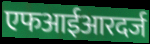
एफआईआरदर्ज